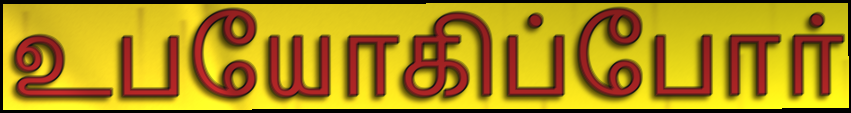
உபயோகிப்போர்